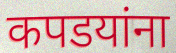
कपडयांना